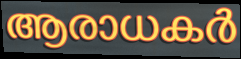
ആരാധകർ